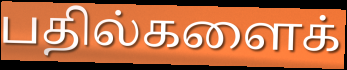
பதில்களைக்